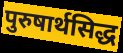
पुरुषार्थसिद्ध